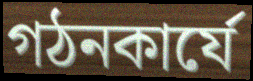
গঠনকার্যে